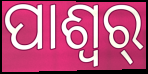
ପାଶ୍ୱର୍